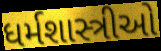
ધર્મશાસ્ત્રીઓ